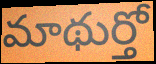
మాథుర్తో